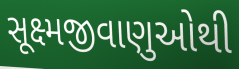
સૂક્ષ્મજીવાણુઓથી